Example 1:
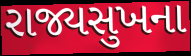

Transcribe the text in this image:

રાજ્યસુખના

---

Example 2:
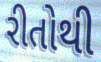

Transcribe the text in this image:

રીતોથી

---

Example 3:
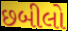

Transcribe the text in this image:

છબીલો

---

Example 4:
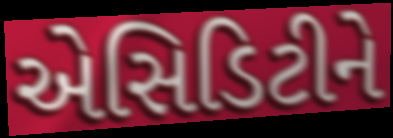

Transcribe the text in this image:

એસિડિટીને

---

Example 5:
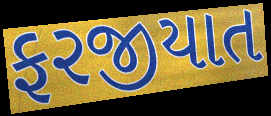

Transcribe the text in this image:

ફરજીયાત